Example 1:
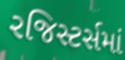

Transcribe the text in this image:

રજિસ્ટર્સમાં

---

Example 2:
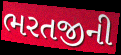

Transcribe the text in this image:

ભરતજીની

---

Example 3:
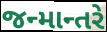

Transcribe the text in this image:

જન્માન્તરે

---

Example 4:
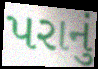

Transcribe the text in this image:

પરાનું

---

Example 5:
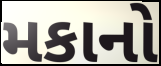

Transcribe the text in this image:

મકાનો